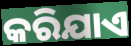
କରିଯାଏ